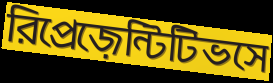
রিপ্রেজ়েন্টিটিভসে